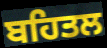
ਬਹਿਤਲ